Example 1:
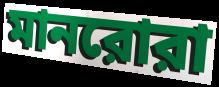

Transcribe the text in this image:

মানরোরা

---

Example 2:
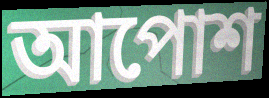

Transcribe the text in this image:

আপোশ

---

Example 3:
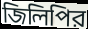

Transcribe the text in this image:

জিলিপির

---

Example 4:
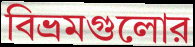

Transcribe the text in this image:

বিভ্রমগুলোর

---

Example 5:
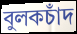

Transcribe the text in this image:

বুলকচাঁদ